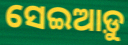
ସେଇଆଡ଼ୁ